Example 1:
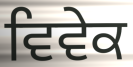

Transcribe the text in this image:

ਵਿਵੇਕ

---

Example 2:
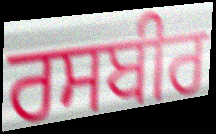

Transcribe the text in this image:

ਰਸਬੀਰ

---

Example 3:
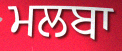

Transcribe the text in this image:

ਮਲਬਾ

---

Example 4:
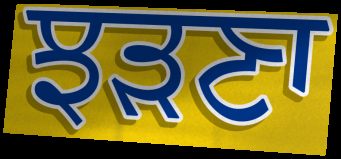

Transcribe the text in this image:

ਝੜਣਾ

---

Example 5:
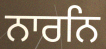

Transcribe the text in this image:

ਨਾਰਨਿ